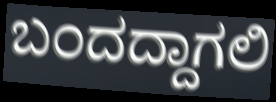
ಬಂದದ್ದಾಗಲಿ